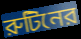
রুটিনের